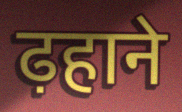
ढ़हाने